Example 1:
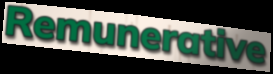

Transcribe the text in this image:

Remunerative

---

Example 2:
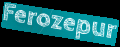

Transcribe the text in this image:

Ferozepur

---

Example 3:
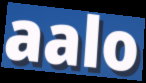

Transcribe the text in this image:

aalo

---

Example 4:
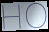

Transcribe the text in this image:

HO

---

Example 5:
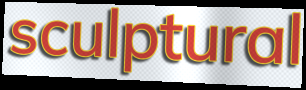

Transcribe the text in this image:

sculptural